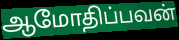
ஆமோதிப்பவன்